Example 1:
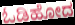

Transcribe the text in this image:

ಓಡಿಹೋದ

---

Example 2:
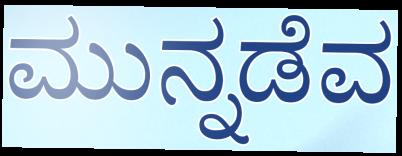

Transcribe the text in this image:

ಮುನ್ನಡೆವ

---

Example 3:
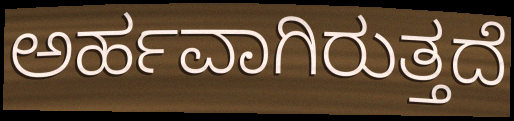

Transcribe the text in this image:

ಅರ್ಹವಾಗಿರುತ್ತದೆ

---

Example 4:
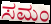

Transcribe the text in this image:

ಸಮಂ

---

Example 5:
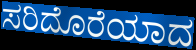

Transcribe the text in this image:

ಸರಿದೊರೆಯಾದ